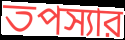
তপস্যার